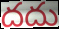
దదు